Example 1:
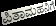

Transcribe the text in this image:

ಪಿತಾಮಹನಿಗೆ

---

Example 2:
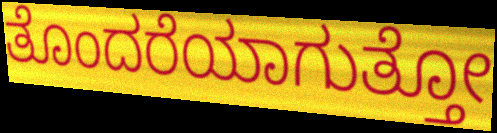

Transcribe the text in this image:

ತೊಂದರೆಯಾಗುತ್ತೋ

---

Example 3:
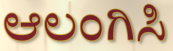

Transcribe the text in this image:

ಆಲಂಗಿಸಿ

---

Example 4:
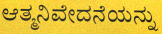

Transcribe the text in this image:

ಆತ್ಮನಿವೇದನೆಯನ್ನು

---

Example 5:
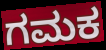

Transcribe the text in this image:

ಗಮಕ